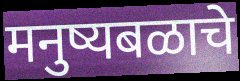
मनुष्यबळाचे